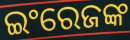
ଇଂରେଜଙ୍କ